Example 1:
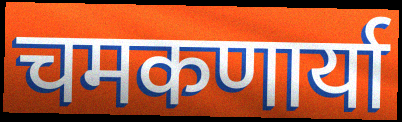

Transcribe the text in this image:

चमकणार्या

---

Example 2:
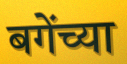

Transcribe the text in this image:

बगेंच्या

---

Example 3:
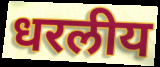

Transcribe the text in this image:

धरलीय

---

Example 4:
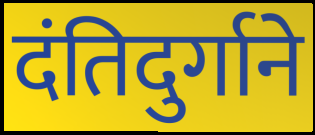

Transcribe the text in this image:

दंतिदुर्गाने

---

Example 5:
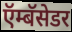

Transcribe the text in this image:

ऍम्बॅसेडर